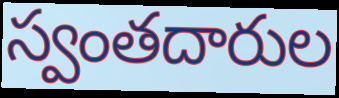
స్వంతదారుల